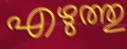
എഴുത്തു